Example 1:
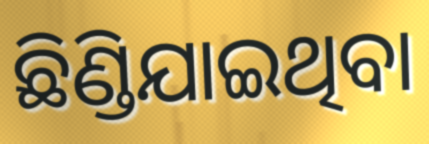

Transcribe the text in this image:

ଛିଣ୍ଡିଯାଇଥିବା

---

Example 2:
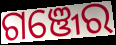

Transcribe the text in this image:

ଗଞ୍ଜେର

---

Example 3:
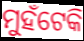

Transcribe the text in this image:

ମୁହଁଟେକି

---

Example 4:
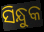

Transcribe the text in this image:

ସିନ୍ଧୁକ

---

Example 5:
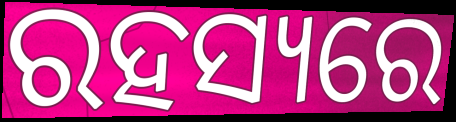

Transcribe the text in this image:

ରହସ୍ୟରେ